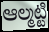
ఆల్మట్టి